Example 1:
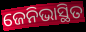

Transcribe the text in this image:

ଜେନିଭାସ୍ଥିତ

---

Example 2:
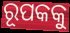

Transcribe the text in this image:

ରୂପକକୁ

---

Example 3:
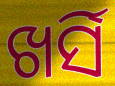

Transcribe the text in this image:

ଖର୍ସି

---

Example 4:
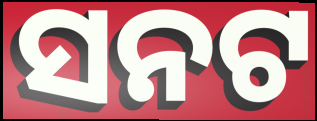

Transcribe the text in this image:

ସନଟ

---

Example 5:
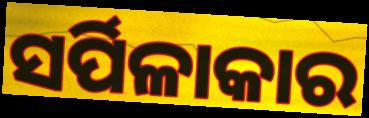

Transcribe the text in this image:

ସର୍ପିଳାକାର